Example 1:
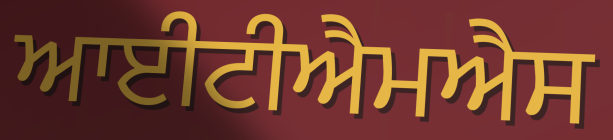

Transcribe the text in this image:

ਆਈਟੀਐਮਐਸ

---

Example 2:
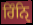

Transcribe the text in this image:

ਰਿੰਨਿੑ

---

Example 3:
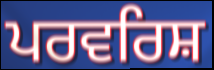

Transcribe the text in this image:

ਪਰਵਰਿਸ਼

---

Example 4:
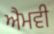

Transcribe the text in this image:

ਐਮਵੀ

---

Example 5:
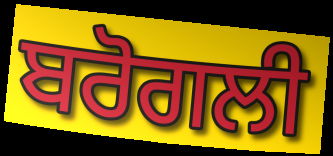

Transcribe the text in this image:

ਬਰੋਗਲੀ